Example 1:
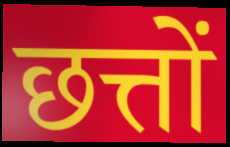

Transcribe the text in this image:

छत्तों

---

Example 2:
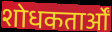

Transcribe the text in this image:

शोधकतार्ओं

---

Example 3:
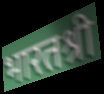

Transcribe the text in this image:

भारतश्री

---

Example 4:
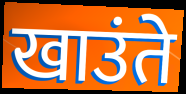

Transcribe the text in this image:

खाउंते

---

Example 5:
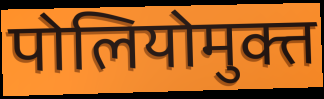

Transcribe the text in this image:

पोलियोमुक्त